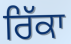
ਰਿੱਕਾ